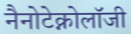
नैनोटेक्नोलॉजी